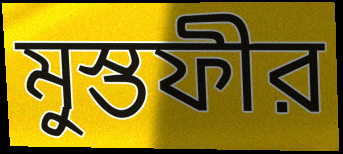
মুস্তফীর